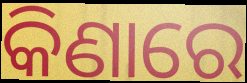
କିଣାରେ